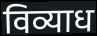
विव्याध